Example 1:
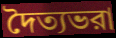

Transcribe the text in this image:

দৈত্যভরা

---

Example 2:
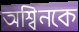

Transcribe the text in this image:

অশ্বিনকে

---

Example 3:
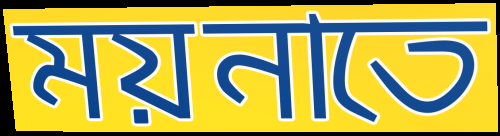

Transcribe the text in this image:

ময়নাতে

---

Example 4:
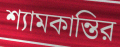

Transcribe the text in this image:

শ্যামকান্তির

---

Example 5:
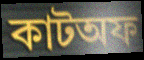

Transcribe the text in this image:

কাটঅফ